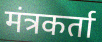
मंत्रकर्ता